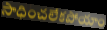
సాధించలేకపోయాం